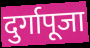
दुर्गापूजा